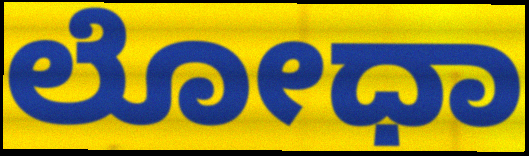
ಲೋಧಾ